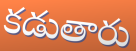
కడుతారు